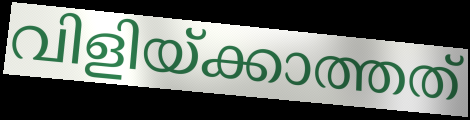
വിളിയ്ക്കാത്തത്